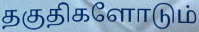
தகுதிகளோடும்